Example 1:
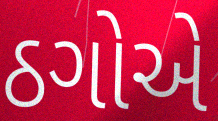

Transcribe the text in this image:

ઠગોએ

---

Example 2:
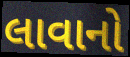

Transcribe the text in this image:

લાવાનો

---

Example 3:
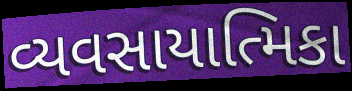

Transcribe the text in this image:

વ્યવસાયાત્મિકા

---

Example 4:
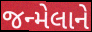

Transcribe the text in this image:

જન્મેલાને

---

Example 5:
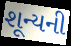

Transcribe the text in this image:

શૂન્યની